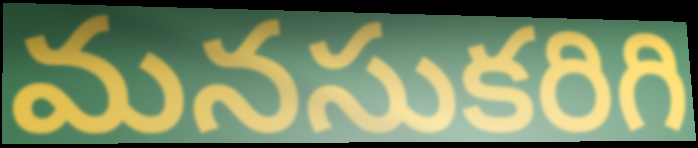
మనసుకరిగి